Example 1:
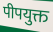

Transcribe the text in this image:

पीपयुक्त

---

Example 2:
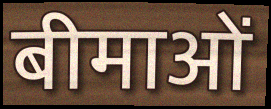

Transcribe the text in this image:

बीमाओं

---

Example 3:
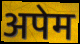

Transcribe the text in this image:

अपेम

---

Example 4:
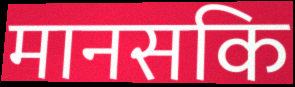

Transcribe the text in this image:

मानसकि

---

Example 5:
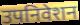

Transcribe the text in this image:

उपनिवेशन